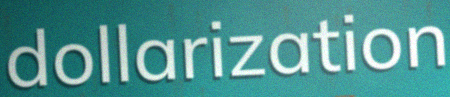
dollarization